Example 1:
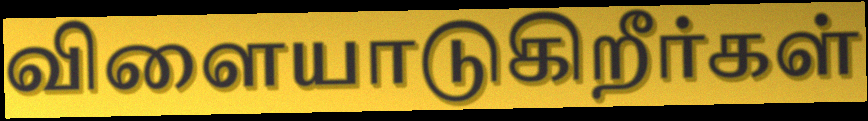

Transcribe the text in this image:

விளையாடுகிறீர்கள்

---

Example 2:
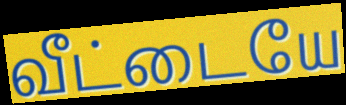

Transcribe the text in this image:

வீட்டையே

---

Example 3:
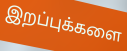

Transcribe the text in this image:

இறப்புக்களை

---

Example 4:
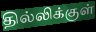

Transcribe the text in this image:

தில்லிக்குள்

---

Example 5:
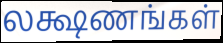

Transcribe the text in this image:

லக்ஷணங்கள்